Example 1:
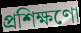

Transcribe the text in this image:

প্ৰশিক্ষণো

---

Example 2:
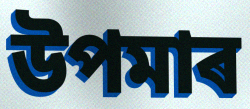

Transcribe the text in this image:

উপমাৰ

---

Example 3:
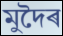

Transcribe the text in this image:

মুদৈৰ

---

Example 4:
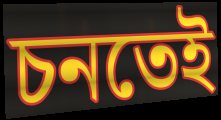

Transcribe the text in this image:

চনতেই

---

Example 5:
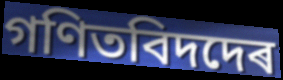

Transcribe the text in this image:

গণিতবিদদেৰ